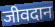
जीवदान